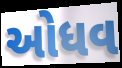
ઓધવ